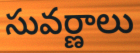
సువర్ణాలు